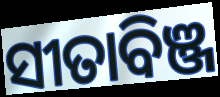
ସୀତାବିଞ୍ଜ